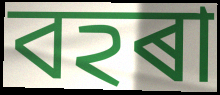
বহৰা